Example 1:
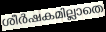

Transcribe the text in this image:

ശീർഷകമില്ലാതെ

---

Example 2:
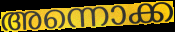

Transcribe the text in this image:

അന്നൊക്ക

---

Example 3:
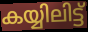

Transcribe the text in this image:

കയ്യിലിട്ട്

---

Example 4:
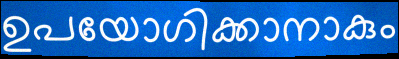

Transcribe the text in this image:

ഉപയോഗിക്കാനാകും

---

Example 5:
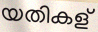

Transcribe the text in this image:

യതികള്